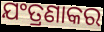
ଯଂତ୍ରଣାକର